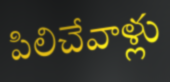
పిలిచేవాళ్లు